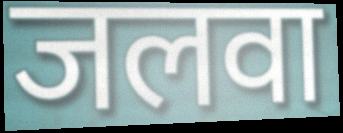
जलवा